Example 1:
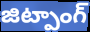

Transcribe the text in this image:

జిట్పాంగ్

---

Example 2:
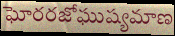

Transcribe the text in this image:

ఘోరరజోఘుష్యమాణ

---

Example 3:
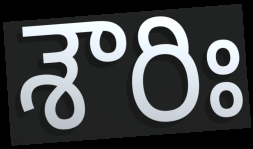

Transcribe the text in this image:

శౌరిః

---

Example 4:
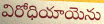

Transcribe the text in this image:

విరోధియాయెను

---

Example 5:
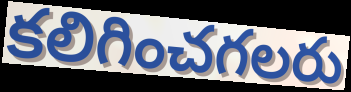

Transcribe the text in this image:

కలిగించగలరు